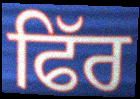
ਫਿੱਰ